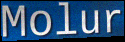
Molur